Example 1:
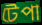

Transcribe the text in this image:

টেপা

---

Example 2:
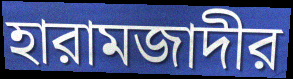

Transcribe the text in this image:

হারামজাদীর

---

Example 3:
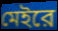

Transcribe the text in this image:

মেইরে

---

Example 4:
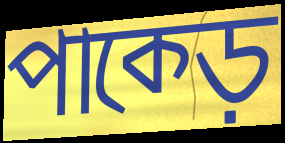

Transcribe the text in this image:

পাক্ড়ে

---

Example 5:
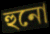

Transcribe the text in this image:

হুনো